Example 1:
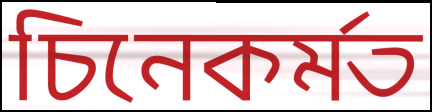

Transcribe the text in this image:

চিনেকৰ্মত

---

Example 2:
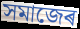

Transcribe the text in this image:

সমাজেৰ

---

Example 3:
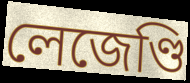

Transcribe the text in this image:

লেজেণ্ডি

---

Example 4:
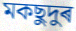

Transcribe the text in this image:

মকছুদুৰ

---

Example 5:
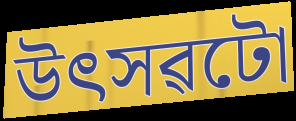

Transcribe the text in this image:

উৎসৱটো